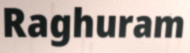
Raghuram